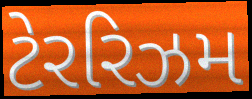
ટેરરિઝમ